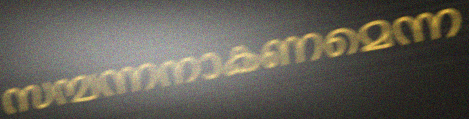
സമ്പന്നനാകണമെന്ന